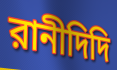
রানীদিদি